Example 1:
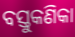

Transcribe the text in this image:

ବସ୍ତୁକଣିକା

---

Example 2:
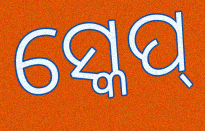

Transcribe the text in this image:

ସ୍କେପ୍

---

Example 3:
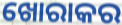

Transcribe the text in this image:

ଖୋରାକର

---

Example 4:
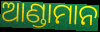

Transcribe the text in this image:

ଆଣ୍ଡାମାନ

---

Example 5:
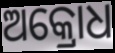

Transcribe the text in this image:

ଅକ୍ରୋଧ